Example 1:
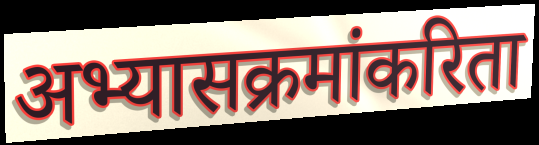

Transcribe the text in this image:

अभ्यासक्रमांकरिता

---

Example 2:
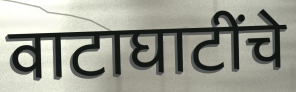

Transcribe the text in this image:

वाटाघाटींचे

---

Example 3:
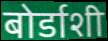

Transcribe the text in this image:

बोर्डाशी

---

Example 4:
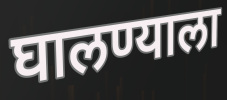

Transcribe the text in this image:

घालण्याला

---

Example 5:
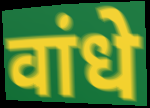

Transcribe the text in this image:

वांधे